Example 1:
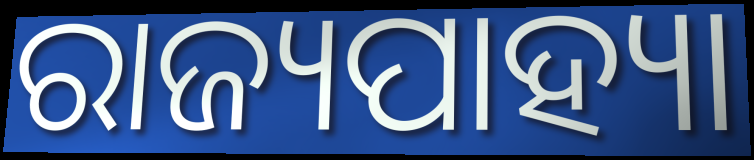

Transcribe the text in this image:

ରାଜ୍ୟପାହ୍ୟା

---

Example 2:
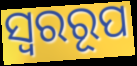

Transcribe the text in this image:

ସ୍ୱରରୂପ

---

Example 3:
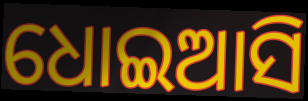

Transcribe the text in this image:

ଧୋଇଆସି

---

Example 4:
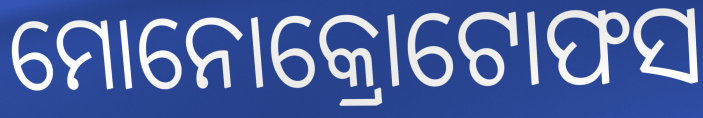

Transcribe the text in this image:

ମୋନୋକ୍ରୋଟୋଫସ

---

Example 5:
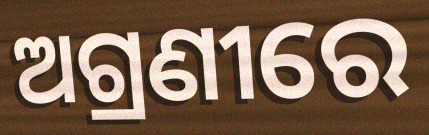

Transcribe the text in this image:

ଅଗ୍ରଣୀରେ